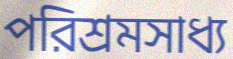
পরিশ্রমসাধ্য